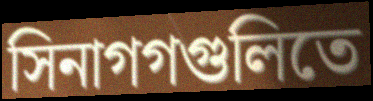
সিনাগগগুলিতে